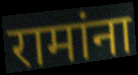
रामांना